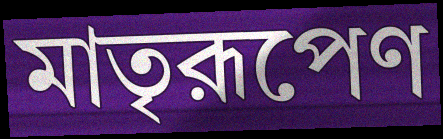
মাতৃরূপেণ